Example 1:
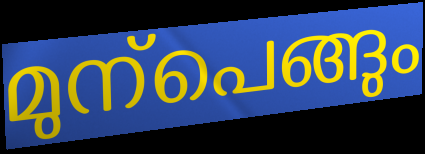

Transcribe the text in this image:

മുന്പെങ്ങും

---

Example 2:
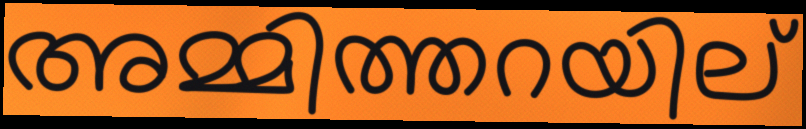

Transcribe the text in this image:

അമ്മിത്തറയില്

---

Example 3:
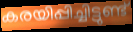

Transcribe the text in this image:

കരയിപ്പിച്ചിട്ടുണ്ട്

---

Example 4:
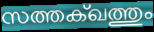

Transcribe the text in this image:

സത്തക്ഖത്തും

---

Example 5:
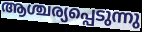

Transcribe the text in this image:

ആശ്ചര്യപ്പെടുന്നു